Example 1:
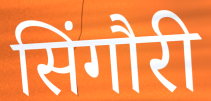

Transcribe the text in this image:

सिंगौरी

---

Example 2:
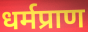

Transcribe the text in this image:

धर्मप्राण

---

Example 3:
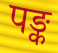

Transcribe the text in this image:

पङ्क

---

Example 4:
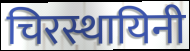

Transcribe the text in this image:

चिरस्थायिनी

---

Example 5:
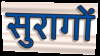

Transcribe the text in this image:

सुरागों